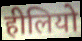
हीलियो